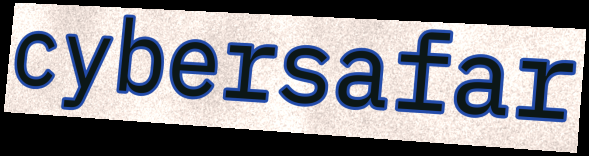
cybersafar